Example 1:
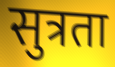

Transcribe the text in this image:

सुत्रता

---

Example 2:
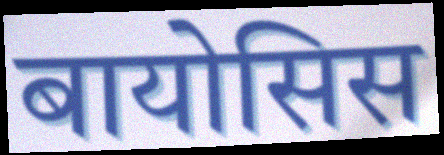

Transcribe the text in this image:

बायोसिस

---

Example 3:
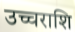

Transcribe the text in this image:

उच्चराशि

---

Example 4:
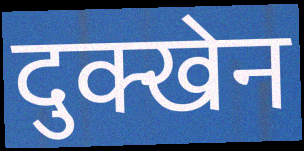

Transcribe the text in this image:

दुक्खेन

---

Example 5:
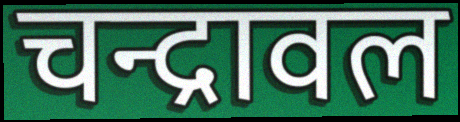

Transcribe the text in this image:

चन्द्रावल